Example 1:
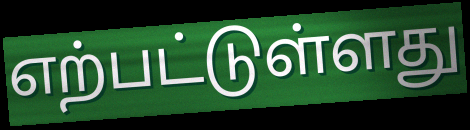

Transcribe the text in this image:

எற்பட்டுள்ளது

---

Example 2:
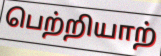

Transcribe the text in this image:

பெற்றியாற்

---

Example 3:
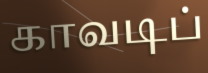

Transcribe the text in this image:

காவடிப்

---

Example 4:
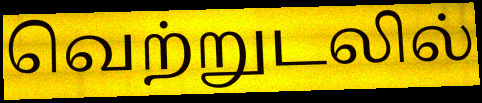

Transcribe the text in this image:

வெற்றுடலில்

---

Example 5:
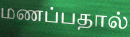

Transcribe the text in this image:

மணப்பதால்